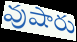
వుషారు